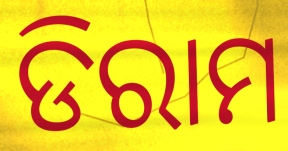
ଡିରାମ